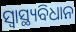
ସ୍ୱାସ୍ଥ୍ୟବିଧାନ